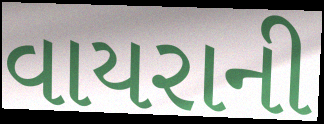
વાયરાની